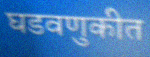
घडवणुकीत